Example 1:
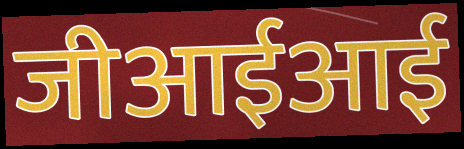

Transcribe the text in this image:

जीआईआई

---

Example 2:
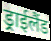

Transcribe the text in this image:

ड्राईलैंड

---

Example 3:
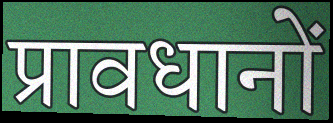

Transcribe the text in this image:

प्रावधानों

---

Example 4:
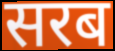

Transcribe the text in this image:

सरब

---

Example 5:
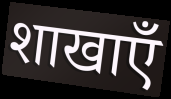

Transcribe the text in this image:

शाखाएँ